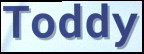
Toddy